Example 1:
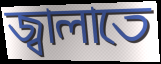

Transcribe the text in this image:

জ্বালাতে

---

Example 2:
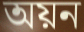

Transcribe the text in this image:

অয়ন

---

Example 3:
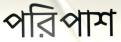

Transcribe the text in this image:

পরিপাশ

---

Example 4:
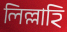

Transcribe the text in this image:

লিল্লাহি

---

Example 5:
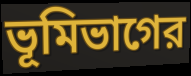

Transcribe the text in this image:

ভূমিভাগের